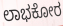
ಲಾಭಕೋರ